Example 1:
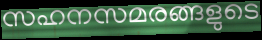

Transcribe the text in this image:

സഹനസമരങ്ങളുടെ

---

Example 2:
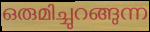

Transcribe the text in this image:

ഒരുമിച്ചുറങ്ങുന്ന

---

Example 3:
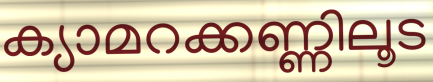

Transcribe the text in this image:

ക്യാമറക്കണ്ണിലൂട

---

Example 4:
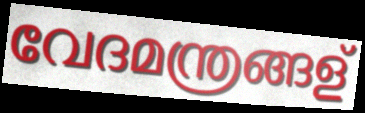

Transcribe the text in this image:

വേദമന്ത്രങ്ങള്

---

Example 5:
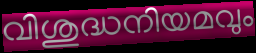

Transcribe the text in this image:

വിശുദ്ധനിയമവും